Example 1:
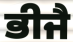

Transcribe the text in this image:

ਭੀਜੈ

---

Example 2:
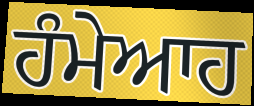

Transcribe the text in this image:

ਹੰਮੇਆਹ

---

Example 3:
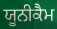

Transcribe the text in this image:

ਯੂਨੀਕੈਮ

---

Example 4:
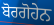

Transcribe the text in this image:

ਬੋਰਗੋਹੇਨ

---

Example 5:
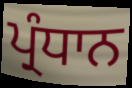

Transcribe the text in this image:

ਪ੍ਰੰਧਾਨ